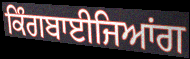
ਕਿੰਗਬਾਈਜਿਆਂਗ